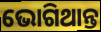
ଭୋଗିଥାନ୍ତ